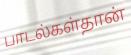
பாடல்கள்தான்